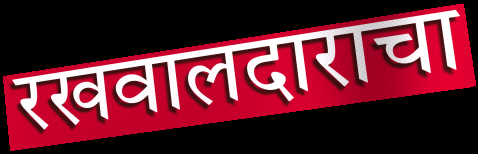
रखवालदाराचा